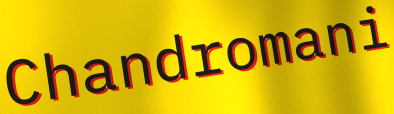
Chandromani